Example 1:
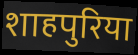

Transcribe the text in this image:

शाहपुरिया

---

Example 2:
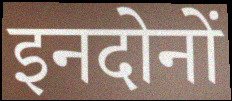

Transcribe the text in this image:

इनदोनों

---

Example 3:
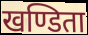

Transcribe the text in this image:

खण्डिता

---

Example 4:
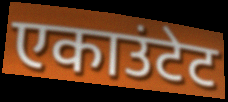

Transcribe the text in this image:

एकाउंटेट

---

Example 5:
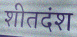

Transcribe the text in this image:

शीतदंश